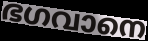
ഭഗവാനെ